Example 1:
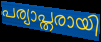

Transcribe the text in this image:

പര്യാപ്തരായി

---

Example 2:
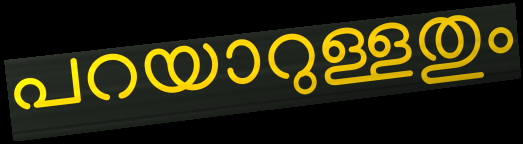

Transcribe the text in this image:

പറയാറുള്ളതും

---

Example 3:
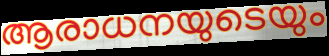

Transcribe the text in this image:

ആരാധനയുടെയും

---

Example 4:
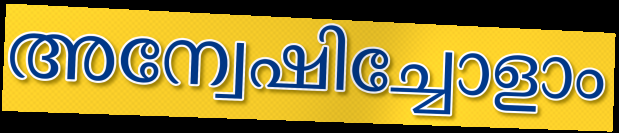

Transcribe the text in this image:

അന്വേഷിച്ചോളാം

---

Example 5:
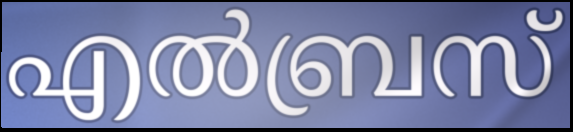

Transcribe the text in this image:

എൽബ്രസ്